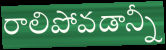
రాలిపోవడాన్నీ